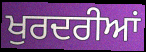
ਖੁਰਦਰੀਆਂ